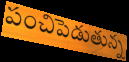
పంచిపెడుతున్న